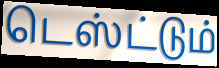
டெஸ்ட்டும்